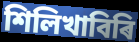
শিলিখাবিৰি